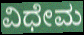
ವಿಧೇಮ